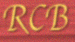
RCB